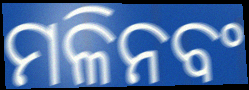
ମଳିନବଂ